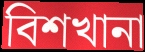
বিশখানা